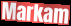
Markam